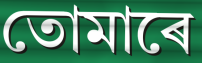
তোমাৰে